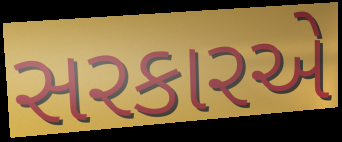
સરકારએ